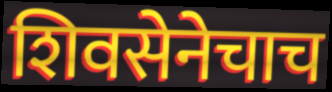
शिवसेनेचाच